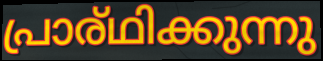
പ്രാര്ഥിക്കുന്നു